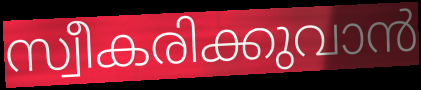
സ്വീകരിക്കുവാൻ